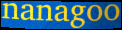
nanagoo